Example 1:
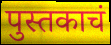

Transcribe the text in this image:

पुस्तकाचं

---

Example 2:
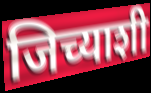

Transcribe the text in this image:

जिच्याशी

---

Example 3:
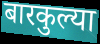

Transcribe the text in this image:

बारकुल्या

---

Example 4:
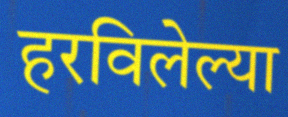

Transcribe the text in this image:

हरविलेल्या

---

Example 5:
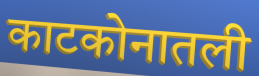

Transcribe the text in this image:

काटकोनातली